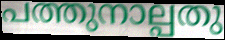
പത്തുനാല്പതു